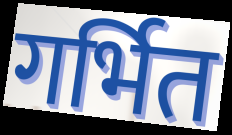
गर्भित